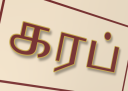
கரப்